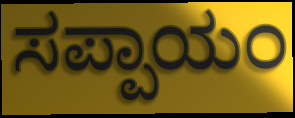
ಸಪ್ಪಾಯಂ